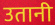
उतानी